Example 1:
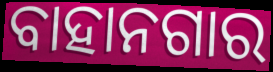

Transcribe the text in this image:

ବାହାନଗାର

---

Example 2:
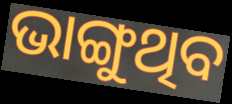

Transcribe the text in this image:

ଭାଙ୍ଗୁଥିବ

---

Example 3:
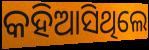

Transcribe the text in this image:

କହିଆସିଥିଲେ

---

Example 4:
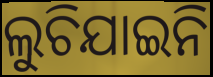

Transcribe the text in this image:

ଲୁଚିଯାଇନି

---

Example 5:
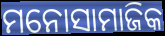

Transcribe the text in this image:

ମନୋସାମାଜିକ